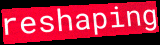
reshaping